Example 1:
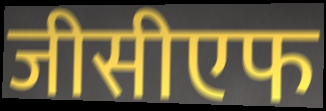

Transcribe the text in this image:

जीसीएफ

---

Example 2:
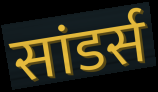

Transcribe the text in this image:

सांडर्स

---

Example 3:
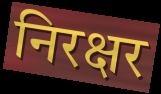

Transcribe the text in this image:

निरक्षर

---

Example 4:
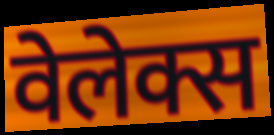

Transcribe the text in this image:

वेलेक्स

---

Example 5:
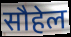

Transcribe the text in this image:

सौहेल